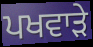
ਪਖਵਾੜੇ